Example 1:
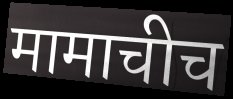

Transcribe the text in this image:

मामाचीच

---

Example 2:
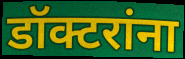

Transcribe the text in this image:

डॉक्टरांना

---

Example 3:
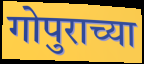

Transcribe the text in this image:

गोपुराच्या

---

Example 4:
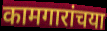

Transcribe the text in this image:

कामगारांचया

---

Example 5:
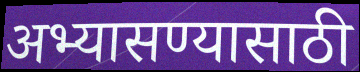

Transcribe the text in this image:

अभ्यासण्यासाठी